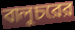
বালুচরের